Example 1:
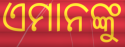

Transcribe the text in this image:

ଏମାନଙ୍କୁ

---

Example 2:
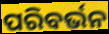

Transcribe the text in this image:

ପରିବର୍ଭନ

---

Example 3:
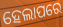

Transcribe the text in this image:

ହେଲାପରେ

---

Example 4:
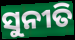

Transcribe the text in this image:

ସୁନୀତି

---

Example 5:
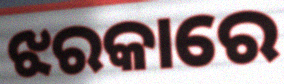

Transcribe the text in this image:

ଝରକାରେ